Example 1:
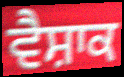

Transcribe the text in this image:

ਵੈਸ਼ਾਕ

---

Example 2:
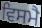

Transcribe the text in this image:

ਵਿਸਮੈ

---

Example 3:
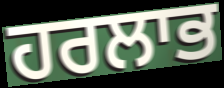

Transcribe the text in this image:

ਹਰਲਾਭ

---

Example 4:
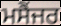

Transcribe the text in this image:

ਮਸੈਂਜਰ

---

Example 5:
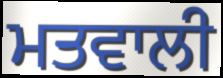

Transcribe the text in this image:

ਮਤਵਾਲੀ